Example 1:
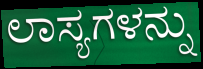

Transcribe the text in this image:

ಲಾಸ್ಯಗಳನ್ನು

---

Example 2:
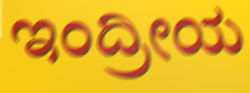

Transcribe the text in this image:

ಇಂದ್ರೀಯ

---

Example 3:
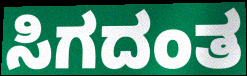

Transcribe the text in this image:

ಸಿಗದಂತ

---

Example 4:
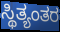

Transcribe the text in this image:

ಸ್ಥಿತ್ಯಂತರ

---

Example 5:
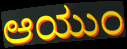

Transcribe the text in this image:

ಆಯುಂ